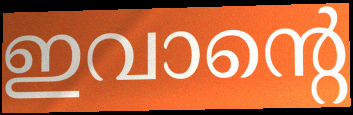
ഇവാന്റെ